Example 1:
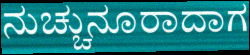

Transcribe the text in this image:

ನುಚ್ಚುನೂರಾದಾಗ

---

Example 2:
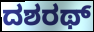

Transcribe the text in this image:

ದಶರಥ್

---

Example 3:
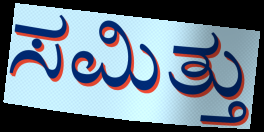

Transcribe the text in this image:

ಸಮಿತ್ತು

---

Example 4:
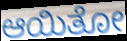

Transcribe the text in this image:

ಆಯಿತೋ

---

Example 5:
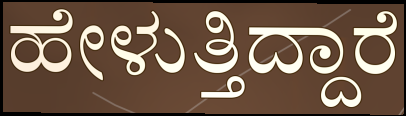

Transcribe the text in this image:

ಹೇಳುತ್ತಿದ್ದಾರೆ